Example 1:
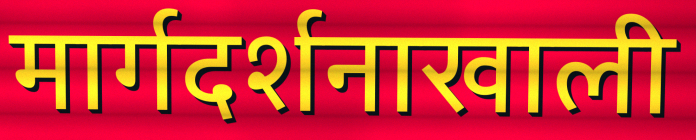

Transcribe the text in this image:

मार्गदर्शनाखाली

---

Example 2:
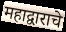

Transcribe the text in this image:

महाद्वाराचे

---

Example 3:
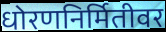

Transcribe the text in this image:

धोरणनिर्मितीवर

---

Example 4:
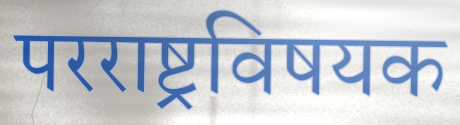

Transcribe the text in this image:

परराष्ट्रविषयक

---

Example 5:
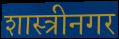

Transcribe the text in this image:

शास्त्रीनगर